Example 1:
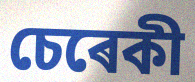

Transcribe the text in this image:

চেৰেকী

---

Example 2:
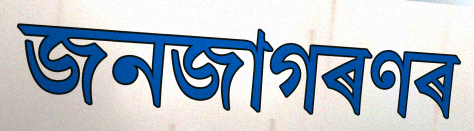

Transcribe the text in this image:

জনজাগৰণৰ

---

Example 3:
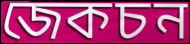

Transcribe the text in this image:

জেকচন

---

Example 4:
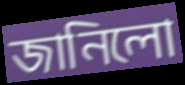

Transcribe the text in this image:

জানিলো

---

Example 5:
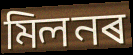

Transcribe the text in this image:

মিলনৰ